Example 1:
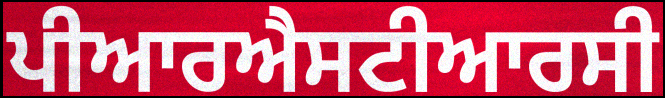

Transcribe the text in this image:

ਪੀਆਰਐਸਟੀਆਰਸੀ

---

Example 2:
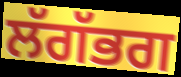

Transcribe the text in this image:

ਲੱਗੱਭਗ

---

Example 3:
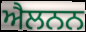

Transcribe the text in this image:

ਐਲਨਨ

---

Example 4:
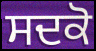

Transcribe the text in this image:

ਸਦਕੋ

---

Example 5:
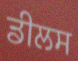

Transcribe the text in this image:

ਡੀਲਸ